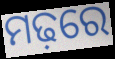
ମଢ଼ରେ